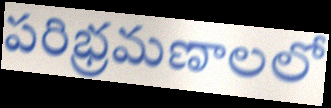
పరిభ్రమణాలలో